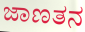
ಜಾಣತನ